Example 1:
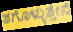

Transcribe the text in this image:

ತಗೊಳ್ಳುತ್ತೇನೆ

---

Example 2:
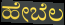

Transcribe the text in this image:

ಹೇಬೆಲ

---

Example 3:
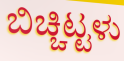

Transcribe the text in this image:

ಬಿಚ್ಚಿಟ್ಟಳು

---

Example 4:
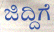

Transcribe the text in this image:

ಜಿದ್ದಿಗೆ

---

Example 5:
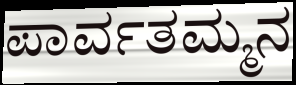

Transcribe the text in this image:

ಪಾರ್ವತಮ್ಮನ